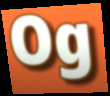
Og